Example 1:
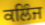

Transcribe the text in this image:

ਕਲਿੰਜ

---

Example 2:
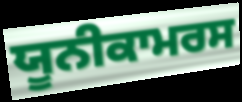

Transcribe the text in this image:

ਯੂਨੀਕਾਮਰਸ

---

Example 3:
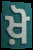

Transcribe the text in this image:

ਖ਼ੋ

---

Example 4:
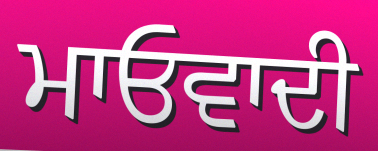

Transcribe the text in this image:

ਮਾਓਵਾਦੀ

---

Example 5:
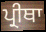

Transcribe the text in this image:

ਪ੍ਰੀਥਾ